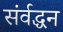
संर्वद्धन